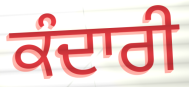
ਕੰਦਾਰੀ